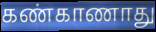
கண்காணாது